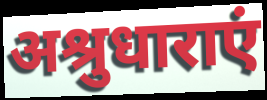
अश्रुधाराएं